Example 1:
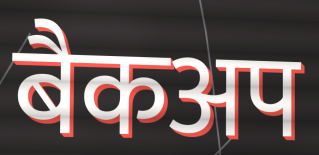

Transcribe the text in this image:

बैकअप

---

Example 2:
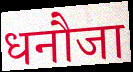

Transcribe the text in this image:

धनौजा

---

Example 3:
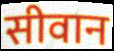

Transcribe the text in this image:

सीवान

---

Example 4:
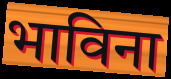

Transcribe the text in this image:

भाविना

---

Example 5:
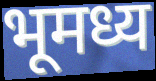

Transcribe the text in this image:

भूमध्य